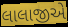
લાલાજીએ